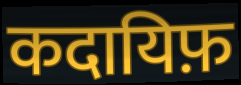
कदायिफ़